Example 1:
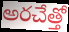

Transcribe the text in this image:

అరచేత్తో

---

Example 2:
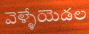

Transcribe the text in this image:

వెళ్ళేయెడల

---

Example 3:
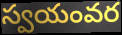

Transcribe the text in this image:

స్వయంవర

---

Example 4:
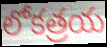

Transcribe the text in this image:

లోకత్రయ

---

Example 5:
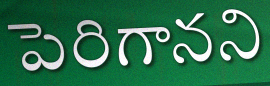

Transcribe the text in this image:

పెరిగానని